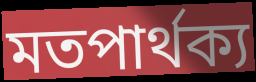
মতপাৰ্থক্য